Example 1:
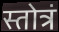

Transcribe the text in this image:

स्तोत्रं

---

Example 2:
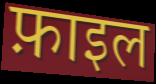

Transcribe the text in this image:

फ़ाइल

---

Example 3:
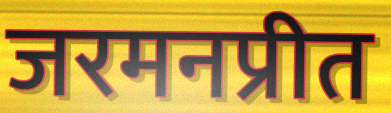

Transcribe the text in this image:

जरमनप्रीत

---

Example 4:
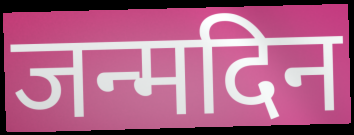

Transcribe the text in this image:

जन्‍मदिन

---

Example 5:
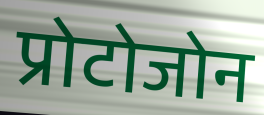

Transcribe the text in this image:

प्रोटोजोन